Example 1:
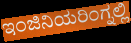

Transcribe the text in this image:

ಇಂಜಿನಿಯರಿಂಗ್ನಲ್ಲಿ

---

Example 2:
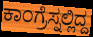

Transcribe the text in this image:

ಕಾಂಗ್ರೆಸ್ನಲ್ಲಿದ್ದ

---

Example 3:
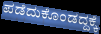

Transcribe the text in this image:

ಪಡೆದುಕೊಂಡದ್ದಕ್ಕೆ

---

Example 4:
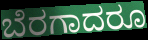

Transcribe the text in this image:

ಬೆರಗಾದರೂ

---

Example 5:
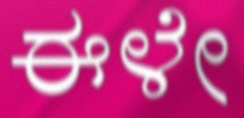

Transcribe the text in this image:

ಈಳೇ